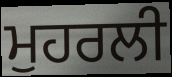
ਮੁਹਰਲੀ